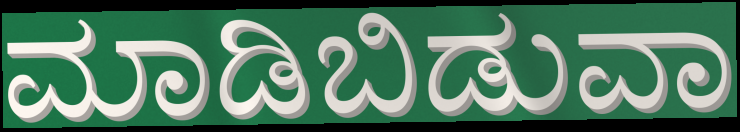
ಮಾಡಿಬಿಡುವಾ